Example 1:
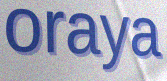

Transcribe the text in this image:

oraya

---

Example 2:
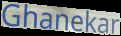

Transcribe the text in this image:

Ghanekar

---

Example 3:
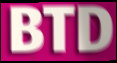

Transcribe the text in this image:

BTD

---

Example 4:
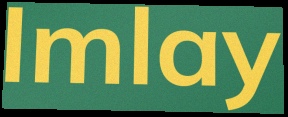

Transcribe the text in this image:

Imlay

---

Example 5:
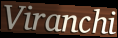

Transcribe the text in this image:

Viranchi